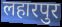
लहारपुर